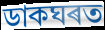
ডাকঘৰত